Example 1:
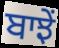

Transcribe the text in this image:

ਬਾਝੇਂ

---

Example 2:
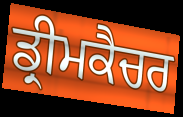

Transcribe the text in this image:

ਡ੍ਰੀਮਕੈਚਰ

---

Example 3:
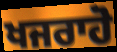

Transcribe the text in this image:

ਖਜਰਾਹੋ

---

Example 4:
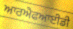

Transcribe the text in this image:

ਆਰਐਫਆਈਡੀ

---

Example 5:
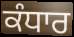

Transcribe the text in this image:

ਕੰਧਾਰ